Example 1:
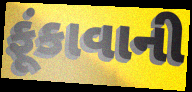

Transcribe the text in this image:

ફૂંકાવાની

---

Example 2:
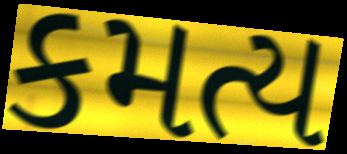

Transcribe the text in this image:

કમત્ય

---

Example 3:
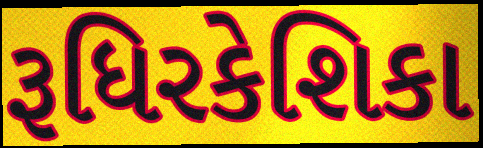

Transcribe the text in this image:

રૂધિરકેશિકા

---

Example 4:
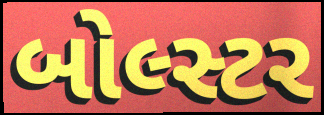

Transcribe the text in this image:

બોલ્સ્ટર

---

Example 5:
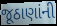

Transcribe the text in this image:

જૂઠાણાંની